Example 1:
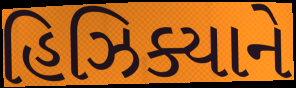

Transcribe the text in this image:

હિઝિક્યાને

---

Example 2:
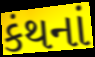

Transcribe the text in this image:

કંથનાં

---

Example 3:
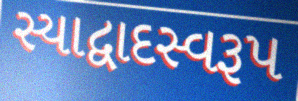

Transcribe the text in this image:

સ્યાદ્વાદસ્વરૂપ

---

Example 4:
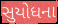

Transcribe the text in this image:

સુયોધના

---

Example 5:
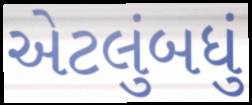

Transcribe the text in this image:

એટલુંબધું